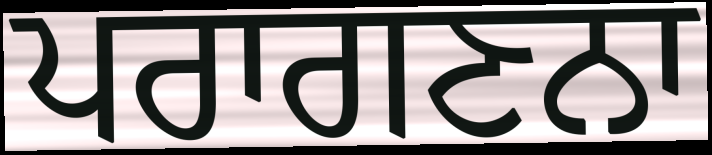
ਪਰਾਗਣਨਾ